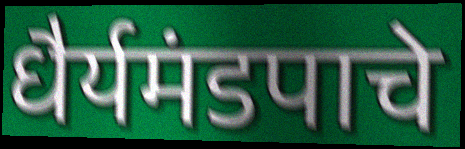
धैर्यमंडपाचे